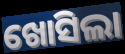
ଖୋସିଲା